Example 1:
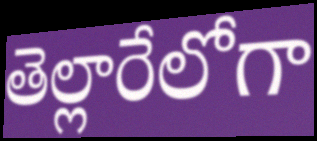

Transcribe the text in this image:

తెల్లారేలోగా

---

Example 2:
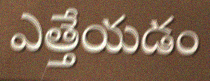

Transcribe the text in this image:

ఎత్తేయడం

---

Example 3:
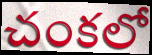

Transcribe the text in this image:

చంకలో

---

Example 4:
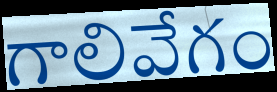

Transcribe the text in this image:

గాలివేగం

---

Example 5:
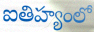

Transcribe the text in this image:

ఐతిహ్యంలో